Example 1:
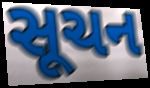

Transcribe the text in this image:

સૂચન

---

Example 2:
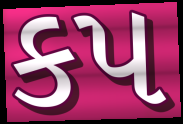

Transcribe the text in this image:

કપ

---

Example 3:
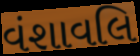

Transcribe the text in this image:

વંશાવલિ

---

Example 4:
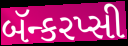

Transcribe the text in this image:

બૅન્કરપ્સી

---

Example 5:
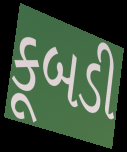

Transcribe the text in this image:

કૂબડી